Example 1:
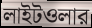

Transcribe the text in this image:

লাইটওলার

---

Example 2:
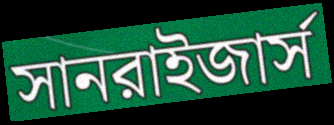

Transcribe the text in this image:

সানরাইজার্স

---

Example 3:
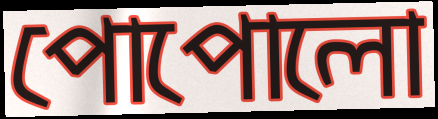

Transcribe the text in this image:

পোপোলো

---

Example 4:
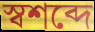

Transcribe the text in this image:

স্বশব্দে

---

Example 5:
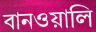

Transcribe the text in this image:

বানওয়ালি